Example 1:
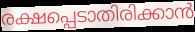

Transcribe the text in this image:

രക്ഷപ്പെടാതിരിക്കാൻ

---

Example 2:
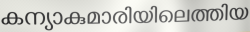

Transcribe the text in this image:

കന്യാകുമാരിയിലെത്തിയ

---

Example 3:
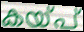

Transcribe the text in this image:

കയ്പ്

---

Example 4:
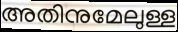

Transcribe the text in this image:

അതിനുമേലുള്ള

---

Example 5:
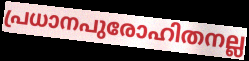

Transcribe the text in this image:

പ്രധാനപുരോഹിതനല്ല